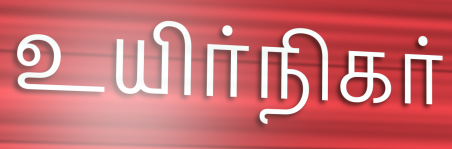
உயிர்நிகர்